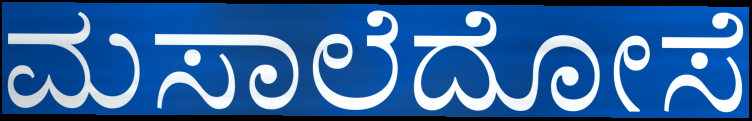
ಮಸಾಲೆದೋಸೆ